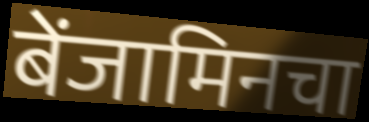
बेंजामिनचा